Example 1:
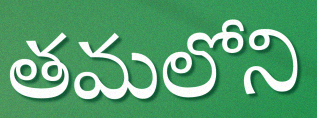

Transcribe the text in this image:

తమలోని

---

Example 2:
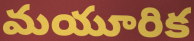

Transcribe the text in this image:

మయూరిక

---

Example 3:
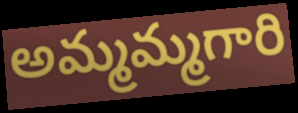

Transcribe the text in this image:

అమ్మమ్మగారి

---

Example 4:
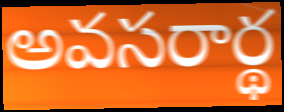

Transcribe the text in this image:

అవసరార్థ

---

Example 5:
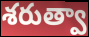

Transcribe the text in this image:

శరుత్వా